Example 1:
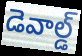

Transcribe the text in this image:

డెవాల్డ్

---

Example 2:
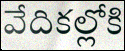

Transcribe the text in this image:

వేదికల్లోకి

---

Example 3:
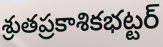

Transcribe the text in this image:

శ్రుతప్రకాశికభట్టర్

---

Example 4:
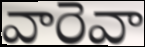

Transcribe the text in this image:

వారెవా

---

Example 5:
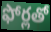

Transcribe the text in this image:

ఫోర్లతో